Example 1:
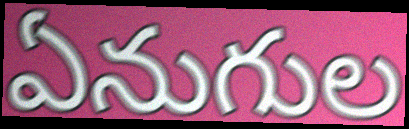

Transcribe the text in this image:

ఏనుగుల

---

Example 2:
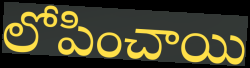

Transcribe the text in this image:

లోపించాయి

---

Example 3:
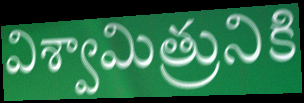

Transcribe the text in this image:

విశ్వామిత్రునికి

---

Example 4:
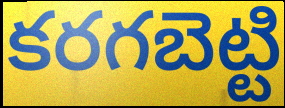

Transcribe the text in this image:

కరగబెట్టి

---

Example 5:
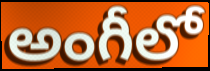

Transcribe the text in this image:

అంగీలో